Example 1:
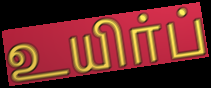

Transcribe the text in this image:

உயிர்ப்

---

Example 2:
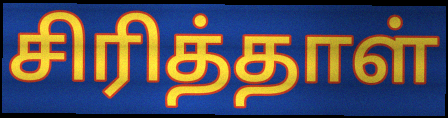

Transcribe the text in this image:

சிரித்தாள்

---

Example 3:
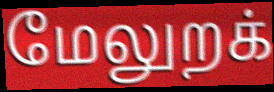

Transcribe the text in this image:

மேலுறக்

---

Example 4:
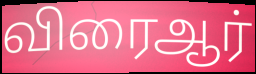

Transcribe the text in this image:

விரைஆர்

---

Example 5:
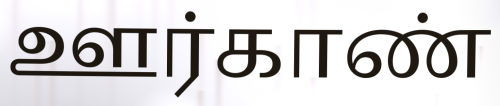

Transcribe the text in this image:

ஊர்காண்